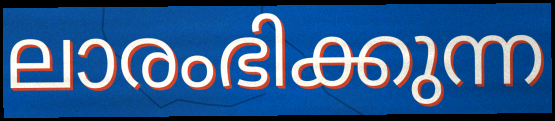
ലാരംഭിക്കുന്ന